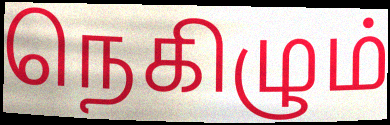
நெகிழும்